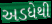
અડધેથી